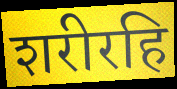
शरीरहि